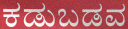
ಕಡುಬಡವ